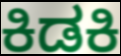
ಕಿಡಕಿ